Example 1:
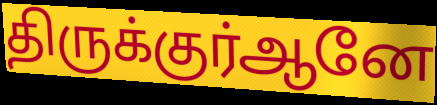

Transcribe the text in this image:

திருக்குர்ஆனே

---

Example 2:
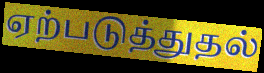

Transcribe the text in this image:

ஏற்படுத்துதல்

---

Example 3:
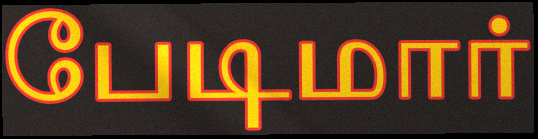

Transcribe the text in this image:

பேடிமார்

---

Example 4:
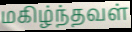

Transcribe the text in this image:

மகிழ்ந்தவள்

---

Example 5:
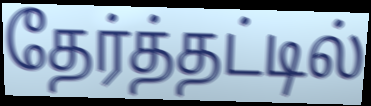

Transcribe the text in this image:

தேர்த்தட்டில்